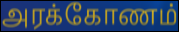
அரக்கோணம்